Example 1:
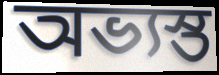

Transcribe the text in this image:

অভ্যস্ত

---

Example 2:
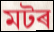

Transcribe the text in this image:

মটৰ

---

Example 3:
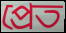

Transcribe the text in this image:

প্ৰেত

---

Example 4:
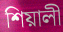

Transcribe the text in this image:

শিয়ালী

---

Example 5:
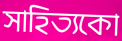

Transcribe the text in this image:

সাহিত্যকো